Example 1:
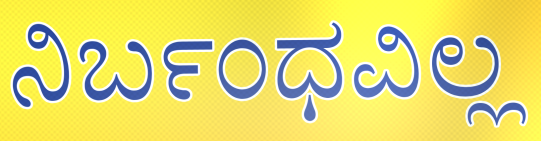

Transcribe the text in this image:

ನಿರ್ಬಂಧವಿಲ್ಲ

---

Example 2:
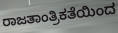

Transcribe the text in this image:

ರಾಜತಾಂತ್ರಿಕತೆಯಿಂದ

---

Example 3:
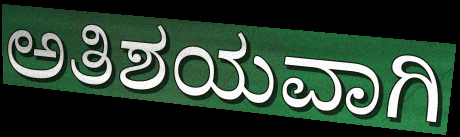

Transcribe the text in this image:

ಅತಿಶಯವಾಗಿ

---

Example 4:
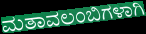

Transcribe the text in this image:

ಮತಾವಲಂಬಿಗಳಾಗಿ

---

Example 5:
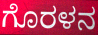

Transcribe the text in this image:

ಗೊರಳನ